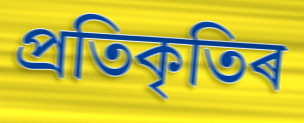
প্ৰতিকৃতিৰ